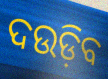
ଦଉଡ଼ିବ